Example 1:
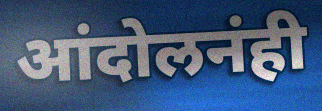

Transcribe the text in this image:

आंदोलनंही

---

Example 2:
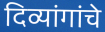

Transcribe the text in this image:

दिव्यांगांचे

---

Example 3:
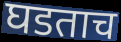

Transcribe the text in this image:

घडताच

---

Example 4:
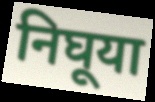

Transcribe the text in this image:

निघूया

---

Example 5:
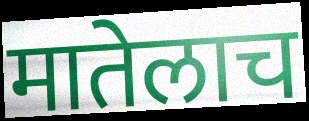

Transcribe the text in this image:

मातेलाच